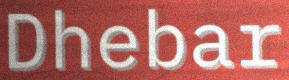
Dhebar